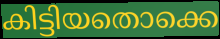
കിട്ടിയതൊക്കെ